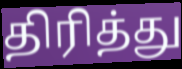
திரித்து